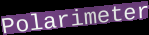
Polarimeter